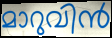
മാറുവിൻ